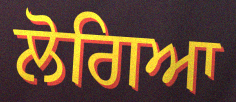
ਲੋਗਿਆ